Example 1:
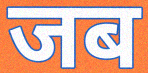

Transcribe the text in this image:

जब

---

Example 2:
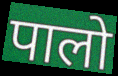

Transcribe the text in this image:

पालो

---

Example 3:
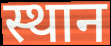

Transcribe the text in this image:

स्थान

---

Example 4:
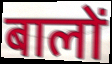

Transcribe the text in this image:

बालों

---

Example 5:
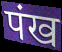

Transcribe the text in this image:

पंख